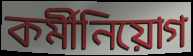
কর্মীনিয়োগ